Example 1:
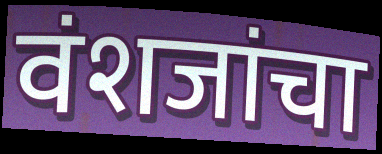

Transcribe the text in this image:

वंशजांचा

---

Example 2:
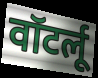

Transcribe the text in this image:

वॉटर्लू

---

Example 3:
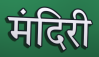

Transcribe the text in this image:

मंदिरी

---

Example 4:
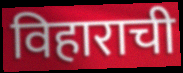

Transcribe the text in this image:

विहाराची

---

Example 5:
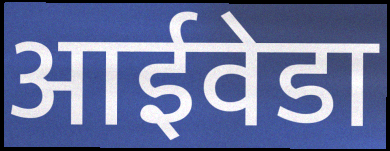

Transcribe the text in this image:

आईवेडा